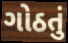
ગોઠતું